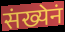
संख्येनं